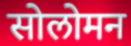
सोलोमन